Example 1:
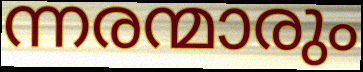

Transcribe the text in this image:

ന്നരന്മാരും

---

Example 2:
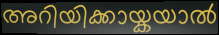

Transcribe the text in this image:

അറിയിക്കായ്കയാൽ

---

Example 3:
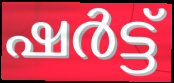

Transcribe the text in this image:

ഷർട്ട്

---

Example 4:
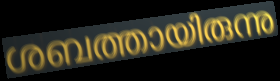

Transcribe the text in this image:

ശബത്തായിരുന്നു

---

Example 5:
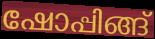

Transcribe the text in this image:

ഷോപ്പിങ്ങ്